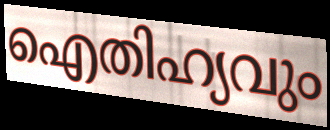
ഐതിഹ്യവും